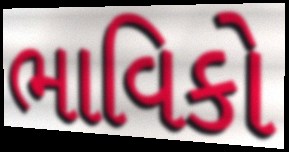
ભાવિકો